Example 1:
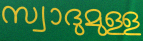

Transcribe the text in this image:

സ്വാദുമുള്ള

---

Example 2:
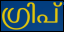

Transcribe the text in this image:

ഗ്രിപ്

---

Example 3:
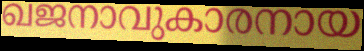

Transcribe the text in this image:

ഖജനാവുകാരനായ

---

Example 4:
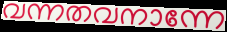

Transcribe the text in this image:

വന്നതവനാന്നേ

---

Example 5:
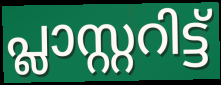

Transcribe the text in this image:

പ്ലാസ്റ്ററിട്ട്